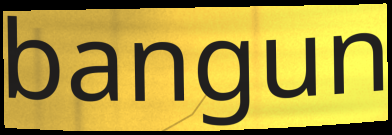
bangun